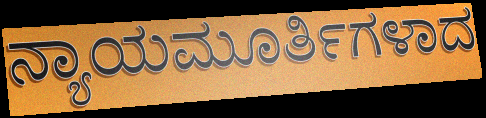
ನ್ಯಾಯಮೂರ್ತಿಗಳಾದ